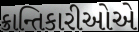
ક્રાન્તિકારીઓએ